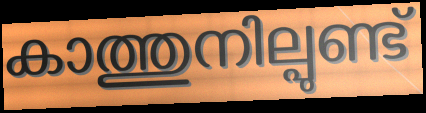
കാത്തുനില്പുണ്ട്